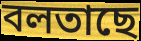
বলতাছে